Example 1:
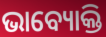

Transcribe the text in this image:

ଭାବ୍ୟୋକ୍ତି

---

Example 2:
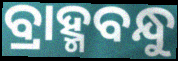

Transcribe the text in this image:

ବ୍ରାହ୍ମବନ୍ଧୁ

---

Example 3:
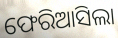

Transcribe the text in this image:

ଫେରିଆସିଲା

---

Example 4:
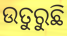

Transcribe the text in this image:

ଉତୁରୁଛି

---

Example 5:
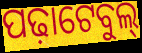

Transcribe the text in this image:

ପଢ଼ାଟେବୁଲ୍